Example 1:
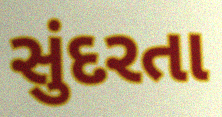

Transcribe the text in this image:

સુંદરતા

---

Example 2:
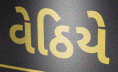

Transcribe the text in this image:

વેઠિયે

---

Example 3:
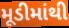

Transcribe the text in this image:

મૂડીમાંથી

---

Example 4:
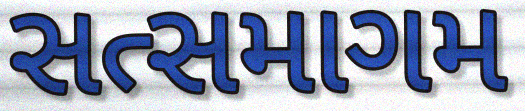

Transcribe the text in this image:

સત્સમાગમ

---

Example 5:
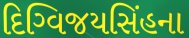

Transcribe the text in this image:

દિગ્વિજયસિંહના